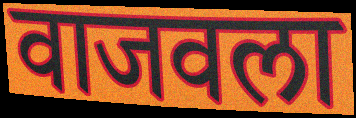
वाजवला